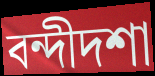
বন্দীদশা